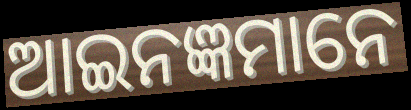
ଆଇନଜ୍ଞମାନେ